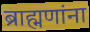
ब्राह्मणांना